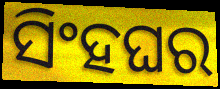
ସିଂହଘର